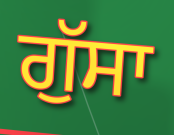
ਗੁੱਸਾ